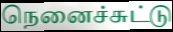
நெனைச்சுட்டு